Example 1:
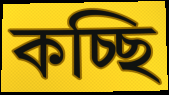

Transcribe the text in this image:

কচ্ছি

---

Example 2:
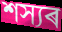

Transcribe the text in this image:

শস্যৰ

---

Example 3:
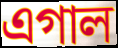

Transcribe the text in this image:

এগাল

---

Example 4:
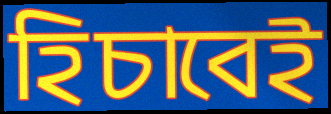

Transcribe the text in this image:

হিচাবেই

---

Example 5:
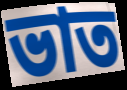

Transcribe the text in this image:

ভাত